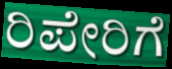
ರಿಪೇರಿಗೆ